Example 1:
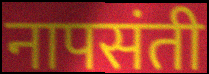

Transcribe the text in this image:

नापसंती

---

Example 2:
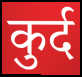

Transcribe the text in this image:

कुर्द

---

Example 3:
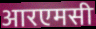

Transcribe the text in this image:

आरएमसी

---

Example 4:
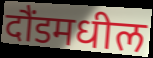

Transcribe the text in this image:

दौंडमधील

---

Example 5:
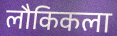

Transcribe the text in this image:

लौकिकला